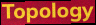
Topology